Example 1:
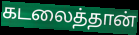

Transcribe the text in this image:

கடலைத்தான்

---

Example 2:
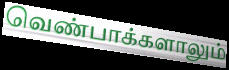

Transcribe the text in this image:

வெண்பாக்களாலும்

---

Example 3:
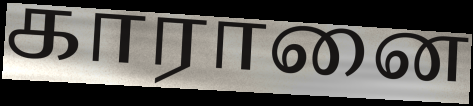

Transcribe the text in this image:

காரானை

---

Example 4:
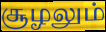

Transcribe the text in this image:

சூழலும்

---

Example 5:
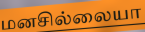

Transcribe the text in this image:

மனசில்லையா